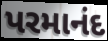
પરમાનંદ